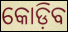
କୋଡ଼ିବ